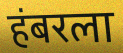
हंबरला